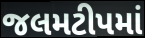
જલમટીપમાં